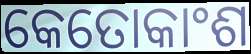
କେତୋକାଂଶ